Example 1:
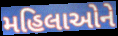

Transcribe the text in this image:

મહિલાઓને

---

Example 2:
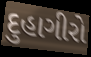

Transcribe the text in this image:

દુહાગીરો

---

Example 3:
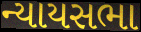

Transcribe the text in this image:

ન્યાયસભા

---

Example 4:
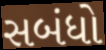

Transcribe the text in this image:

સબંધો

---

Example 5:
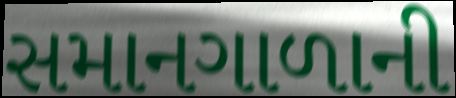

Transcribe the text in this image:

સમાનગાળાની